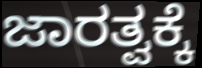
ಜಾರತ್ವಕ್ಕೆ